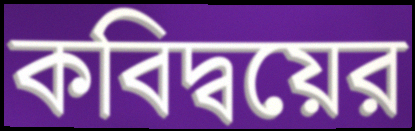
কবিদ্বয়ের